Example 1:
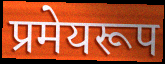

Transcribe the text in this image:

प्रमेयरूप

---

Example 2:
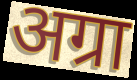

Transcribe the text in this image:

अग्रा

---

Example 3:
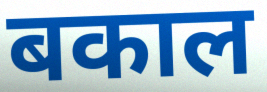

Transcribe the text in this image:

बकाल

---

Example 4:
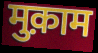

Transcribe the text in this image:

मुक़ाम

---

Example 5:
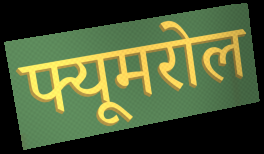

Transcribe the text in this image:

फ्यूमरोल